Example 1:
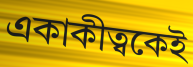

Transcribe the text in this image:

একাকীত্বকেই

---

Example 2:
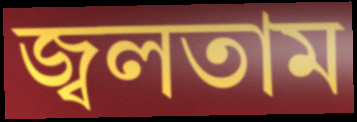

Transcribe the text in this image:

জ্বলতাম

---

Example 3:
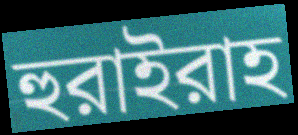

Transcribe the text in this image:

হুরাইরাহ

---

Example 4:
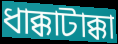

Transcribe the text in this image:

ধাক্কাটাক্কা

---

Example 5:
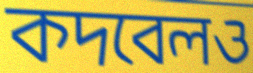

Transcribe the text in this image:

কদবেলও